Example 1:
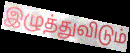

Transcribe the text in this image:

இழுத்துவிடும்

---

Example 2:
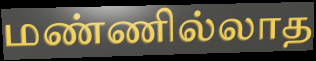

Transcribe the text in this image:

மண்ணில்லாத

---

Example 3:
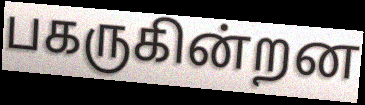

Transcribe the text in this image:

பகருகின்றன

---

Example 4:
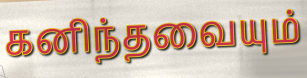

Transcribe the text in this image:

கனிந்தவையும்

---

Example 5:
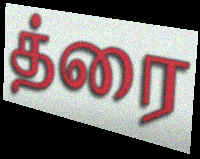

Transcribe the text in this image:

த்ரை